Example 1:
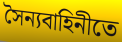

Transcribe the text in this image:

সৈন্যবাহিনীতে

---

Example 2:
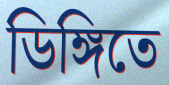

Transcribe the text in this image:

ডিঙ্গিতে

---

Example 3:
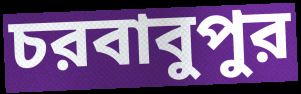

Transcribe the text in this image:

চরবাবুপুর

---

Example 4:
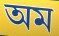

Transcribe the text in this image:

অম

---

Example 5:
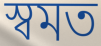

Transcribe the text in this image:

স্বমত